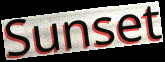
Sunset